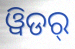
ୱିଡର୍